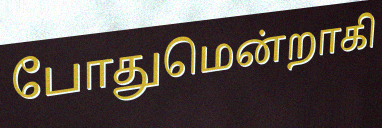
போதுமென்றாகி